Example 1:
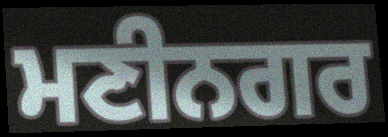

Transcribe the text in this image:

ਮਣੀਨਗਰ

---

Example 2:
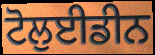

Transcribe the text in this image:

ਟੋਲੁਈਡੀਨ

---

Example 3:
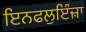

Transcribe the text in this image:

ਇਨਫਲੁਇੰਜ਼ਾ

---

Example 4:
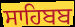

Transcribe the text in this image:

ਸਾਹਿਬਬ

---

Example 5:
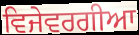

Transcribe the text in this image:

ਵਿਜੇਵਰਗੀਆ